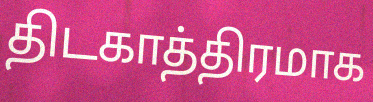
திடகாத்திரமாக